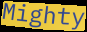
Mighty